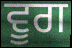
ਵੂਗ